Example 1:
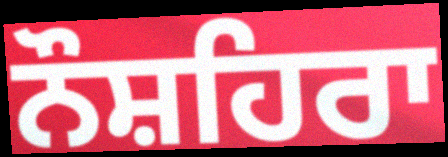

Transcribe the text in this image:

ਨੌਸ਼ਹਿਰਾ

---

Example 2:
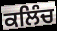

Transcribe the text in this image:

ਕਲਿੰਚ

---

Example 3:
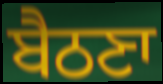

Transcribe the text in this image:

ਬੈਠਣਾ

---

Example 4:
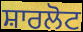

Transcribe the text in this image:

ਸ਼ਾਰਲੋਟ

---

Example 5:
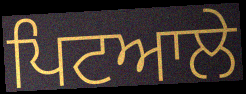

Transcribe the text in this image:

ਪਿਟਆਲੇ